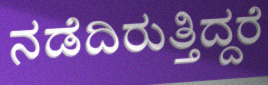
ನಡೆದಿರುತ್ತಿದ್ದರೆ